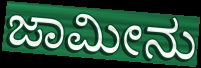
ಜಾಮೀನು